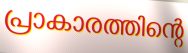
പ്രാകാരത്തിന്റെ